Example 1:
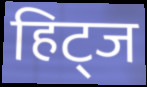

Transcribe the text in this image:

हिट्ज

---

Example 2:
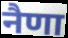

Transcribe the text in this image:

नैणा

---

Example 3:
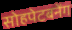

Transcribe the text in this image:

सोहपेटबनेंग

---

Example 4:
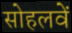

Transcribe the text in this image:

सोहलवें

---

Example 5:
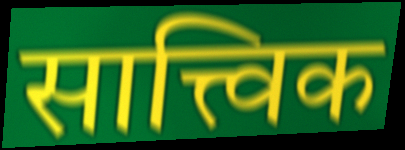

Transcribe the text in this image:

सात्त्विक